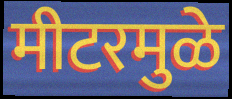
मीटरमुळे